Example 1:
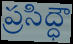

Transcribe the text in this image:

ప్రసిద్ధౌ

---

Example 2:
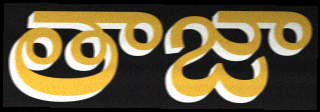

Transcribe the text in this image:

తాజా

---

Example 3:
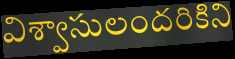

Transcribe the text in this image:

విశ్వాసులందరికిని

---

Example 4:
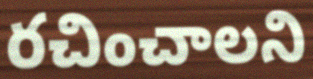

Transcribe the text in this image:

రచించాలని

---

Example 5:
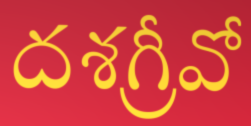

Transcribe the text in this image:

దశగ్రీవో